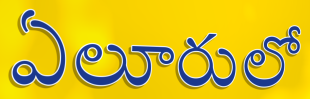
ఏలూరులో